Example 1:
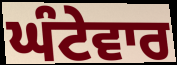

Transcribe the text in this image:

ਘੰਟੇਵਾਰ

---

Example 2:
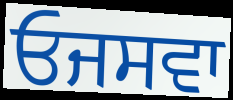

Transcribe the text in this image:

ਓਜਸਵਾ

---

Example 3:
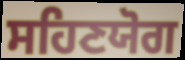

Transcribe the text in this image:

ਸਹਿਣਯੋਗ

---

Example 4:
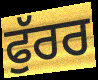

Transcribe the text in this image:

ਫੁੱਰਰ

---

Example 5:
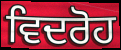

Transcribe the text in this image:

ਵਿਦਰੋਹ